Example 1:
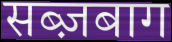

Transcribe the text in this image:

सब्ज़बाग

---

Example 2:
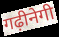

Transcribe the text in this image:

गढ़ीनेगी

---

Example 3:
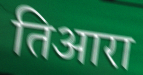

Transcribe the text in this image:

तिआरा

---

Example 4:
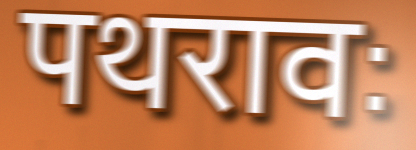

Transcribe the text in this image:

पथरावः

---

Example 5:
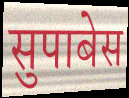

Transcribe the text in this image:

सुपाबेस